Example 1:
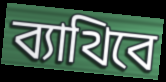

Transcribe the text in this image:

ব্যাথিবে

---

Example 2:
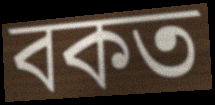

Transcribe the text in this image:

বকত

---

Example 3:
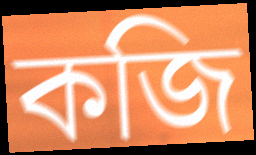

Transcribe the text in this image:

কজি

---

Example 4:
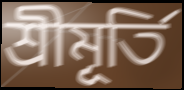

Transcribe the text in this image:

শ্রীমূর্তি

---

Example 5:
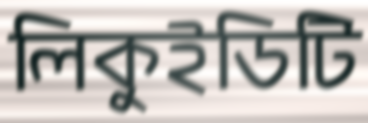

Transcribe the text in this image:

লিকুইডিটি